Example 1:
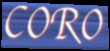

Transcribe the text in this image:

CORO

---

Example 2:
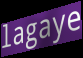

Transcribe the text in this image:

lagaye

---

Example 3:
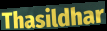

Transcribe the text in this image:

Thasildhar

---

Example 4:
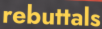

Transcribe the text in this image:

rebuttals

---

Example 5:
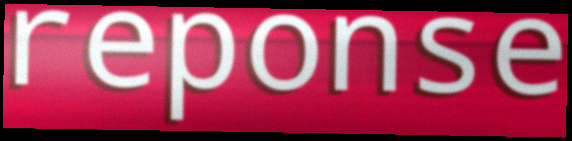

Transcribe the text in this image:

reponse